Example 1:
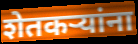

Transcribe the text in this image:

शेतकऱ्यांना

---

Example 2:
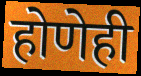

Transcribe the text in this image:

होणेही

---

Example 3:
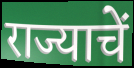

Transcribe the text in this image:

राज्याचें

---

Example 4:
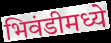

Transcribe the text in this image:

भिवंडीमध्ये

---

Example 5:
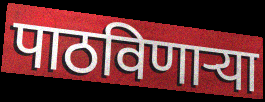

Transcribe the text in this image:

पाठविणाऱ्या